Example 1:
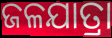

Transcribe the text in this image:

ଜଳଯାତ୍ରା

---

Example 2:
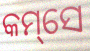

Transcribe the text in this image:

କମ୍‌ସେ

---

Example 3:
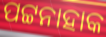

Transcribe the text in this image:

ପଟ୍ଟନାହାକ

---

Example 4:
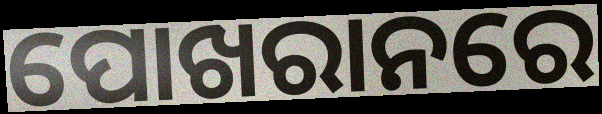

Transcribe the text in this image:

ପୋଖରାନରେ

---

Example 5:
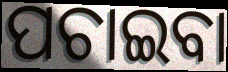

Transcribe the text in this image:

ପଚାଇବା